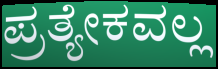
ಪ್ರತ್ಯೇಕವಲ್ಲ